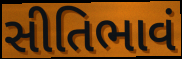
સીતિભાવં